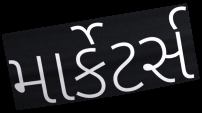
માર્કેટર્સ